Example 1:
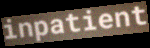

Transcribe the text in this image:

inpatient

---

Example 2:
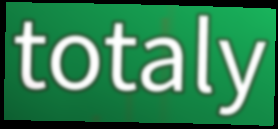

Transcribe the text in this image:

totaly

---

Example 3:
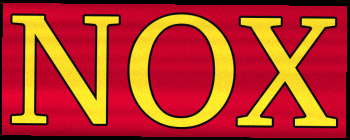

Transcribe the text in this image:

NOX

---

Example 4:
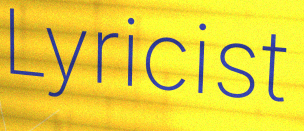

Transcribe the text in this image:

Lyricist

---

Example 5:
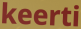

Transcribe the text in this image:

keerti